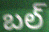
బల్